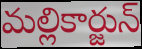
మల్లికార్జున్